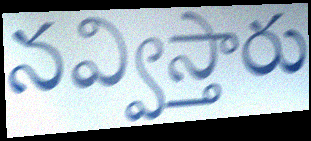
నవ్విస్తారు